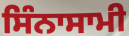
ਸਿੰਨਾਸਾਮੀ